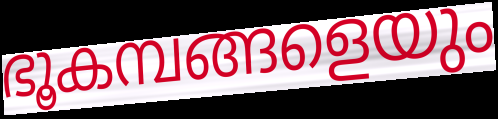
ഭൂകമ്പങ്ങളെയും